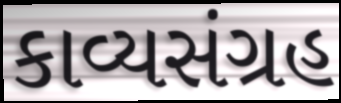
કાવ્યસંગ્રહ